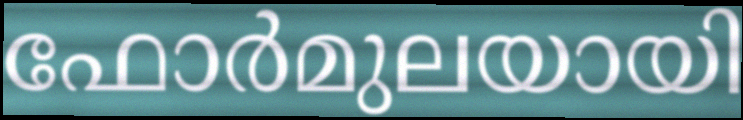
ഫോർമുലയായി